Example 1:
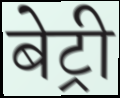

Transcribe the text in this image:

बेट्री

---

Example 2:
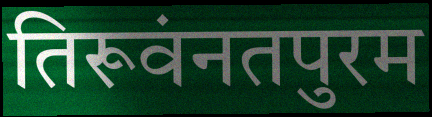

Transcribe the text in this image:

तिरूवंनतपुरम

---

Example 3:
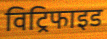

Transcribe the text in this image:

विट्रिफाइड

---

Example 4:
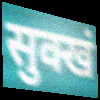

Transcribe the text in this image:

सुक्खं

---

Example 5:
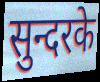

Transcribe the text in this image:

सुन्दरके